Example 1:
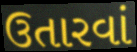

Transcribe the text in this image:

ઉતારવાં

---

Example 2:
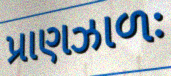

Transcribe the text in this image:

પ્રાણઝાળઃ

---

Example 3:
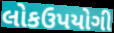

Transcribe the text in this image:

લોકઉપયોગી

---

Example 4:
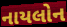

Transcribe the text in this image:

નાયલોન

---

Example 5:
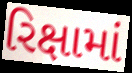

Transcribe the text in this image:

રિક્ષામાં